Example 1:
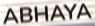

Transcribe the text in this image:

ABHAYA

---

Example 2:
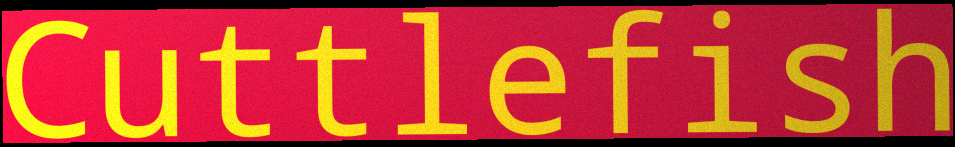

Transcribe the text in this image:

Cuttlefish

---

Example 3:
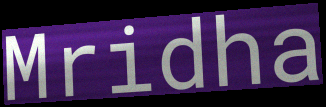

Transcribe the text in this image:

Mridha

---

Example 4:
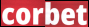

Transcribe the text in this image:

corbet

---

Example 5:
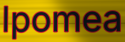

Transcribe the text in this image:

Ipomea